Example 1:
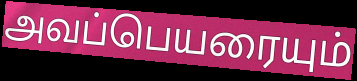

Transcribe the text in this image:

அவப்பெயரையும்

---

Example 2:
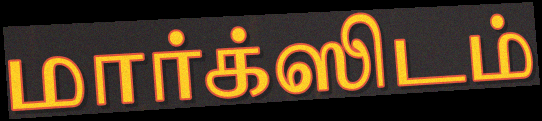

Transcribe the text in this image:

மார்க்ஸிடம்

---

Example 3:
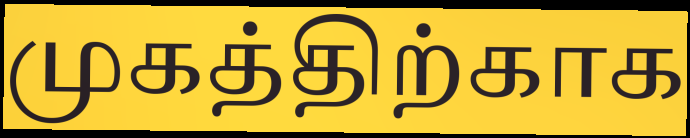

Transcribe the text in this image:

முகத்திற்காக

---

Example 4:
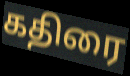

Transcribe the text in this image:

கதிரை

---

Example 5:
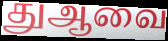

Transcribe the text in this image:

துஆவை